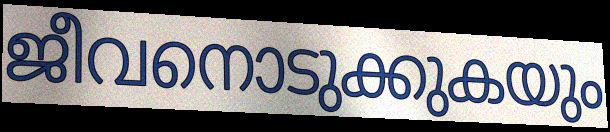
ജീവനൊടുക്കുകയും